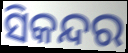
ସିକନ୍ଦର